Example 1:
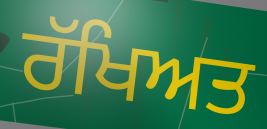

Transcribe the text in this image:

ਰੱਖਿਅਤ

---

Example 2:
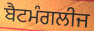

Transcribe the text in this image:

ਬੈਟਮੰਗਲੀਜ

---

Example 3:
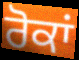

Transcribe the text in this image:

ਰੋਕਾਂ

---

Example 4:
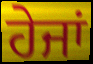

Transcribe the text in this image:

ਹੇਜਾਂ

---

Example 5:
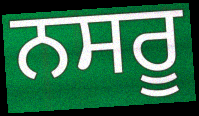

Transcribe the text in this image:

ਨਸਰੂ